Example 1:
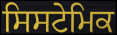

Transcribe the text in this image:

ਸਿਸਟੇਮਿਕ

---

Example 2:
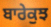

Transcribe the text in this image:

ਬਾਰੇਕੁਝ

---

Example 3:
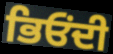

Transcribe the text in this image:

ਭਿਓਂਦੀ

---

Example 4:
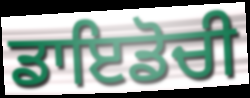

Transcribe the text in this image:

ਡਾਇਡੋਚੀ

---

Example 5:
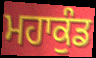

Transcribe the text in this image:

ਮਹਾਕੁੰਡ